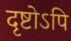
दृष्टोऽपि